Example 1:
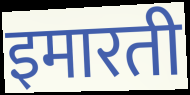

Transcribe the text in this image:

इमारती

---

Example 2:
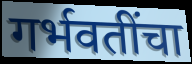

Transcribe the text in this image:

गर्भवतींचा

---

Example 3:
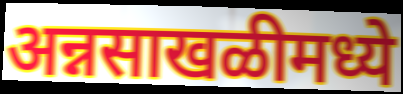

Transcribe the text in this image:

अन्नसाखळीमध्ये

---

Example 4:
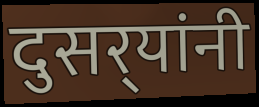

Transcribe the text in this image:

दुसर्‍यांनी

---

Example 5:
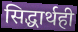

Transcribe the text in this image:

सिद्धार्थही